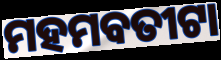
ମହମବତୀଟା